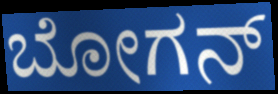
ಬೋಗನ್